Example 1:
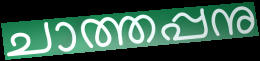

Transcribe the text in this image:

ചാത്തപ്പനു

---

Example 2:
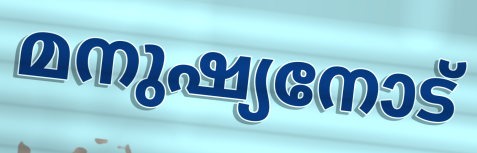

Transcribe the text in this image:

മനുഷ്യനോട്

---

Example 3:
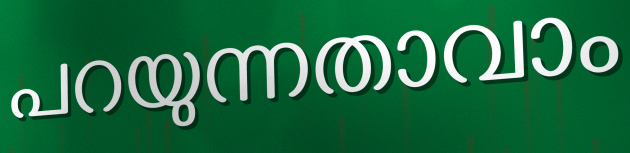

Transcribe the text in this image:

പറയുന്നതാവാം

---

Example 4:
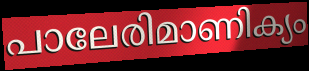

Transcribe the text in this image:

പാലേരിമാണിക്യം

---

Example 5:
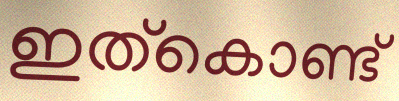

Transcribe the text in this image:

ഇത്കൊണ്ട്